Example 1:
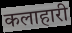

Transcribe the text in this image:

कलाहारी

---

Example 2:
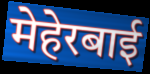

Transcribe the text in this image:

मेहेरबाई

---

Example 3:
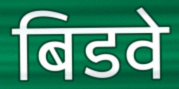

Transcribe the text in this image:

बिडवे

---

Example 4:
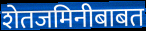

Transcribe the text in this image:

शेतजमिनीबाबत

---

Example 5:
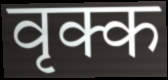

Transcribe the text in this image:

वृक्क